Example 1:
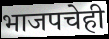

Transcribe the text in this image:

भाजपचेही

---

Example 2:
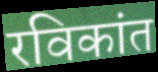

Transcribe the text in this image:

रविकांत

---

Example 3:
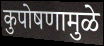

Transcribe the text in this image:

कुपोषणामुळे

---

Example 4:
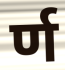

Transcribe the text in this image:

र्ण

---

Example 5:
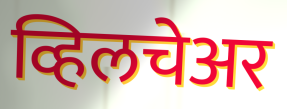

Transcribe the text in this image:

व्हिलचेअर